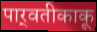
पार्वतीकाकू